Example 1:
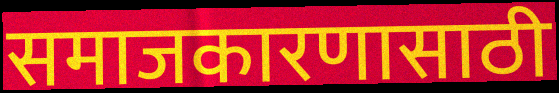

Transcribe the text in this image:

समाजकारणासाठी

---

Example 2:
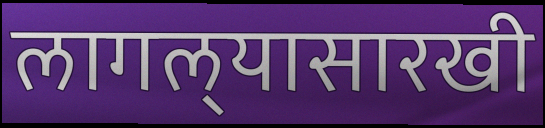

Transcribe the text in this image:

लागल्यासारखी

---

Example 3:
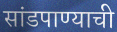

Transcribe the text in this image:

सांडपाण्याची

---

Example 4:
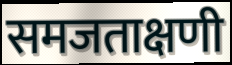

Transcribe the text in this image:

समजताक्षणी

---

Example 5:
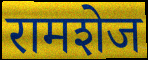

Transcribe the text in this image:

रामशेज